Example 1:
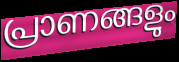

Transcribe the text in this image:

പ്രാണങ്ങളും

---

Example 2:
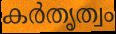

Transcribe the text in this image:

കർതൃത്വം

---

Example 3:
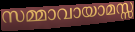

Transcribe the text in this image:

സമ്മാവായാമസ്സ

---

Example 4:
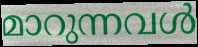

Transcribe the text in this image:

മാറുന്നവൾ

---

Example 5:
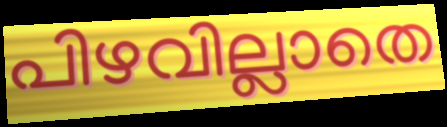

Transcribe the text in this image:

പിഴവില്ലാതെ